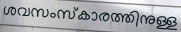
ശവസംസ്കാരത്തിനുള്ള